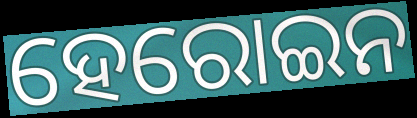
ହେରୋଇନ